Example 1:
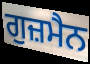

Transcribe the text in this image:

ਗੁਜ਼ਮੈਨ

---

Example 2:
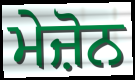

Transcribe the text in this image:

ਮੇਜ਼ੋਨ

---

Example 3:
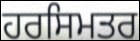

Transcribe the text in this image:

ਹਰਸਿਮਤਰ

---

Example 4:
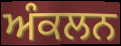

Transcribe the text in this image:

ਅੰਕਲਨ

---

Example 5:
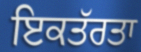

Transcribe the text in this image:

ਇਕਤੱਰਤਾ